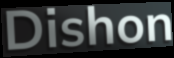
Dishon